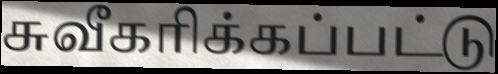
சுவீகரிக்கப்பட்டு